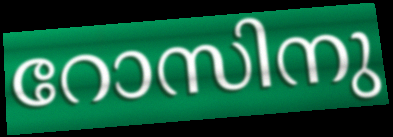
റോസിനു